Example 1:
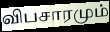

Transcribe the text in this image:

விபசாரமும்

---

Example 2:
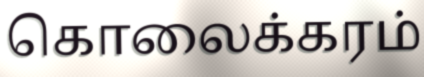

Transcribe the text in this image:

கொலைக்கரம்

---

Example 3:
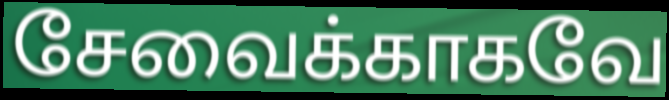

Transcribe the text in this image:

சேவைக்காகவே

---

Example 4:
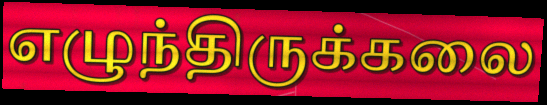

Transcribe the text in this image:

எழுந்திருக்கலை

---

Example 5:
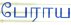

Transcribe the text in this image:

பேராய